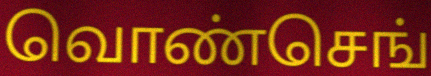
வொண்செங்